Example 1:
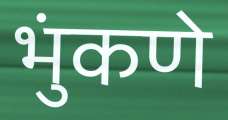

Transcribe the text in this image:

भुंकणे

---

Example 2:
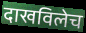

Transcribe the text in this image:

दाखविलेच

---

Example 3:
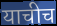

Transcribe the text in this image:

याचीच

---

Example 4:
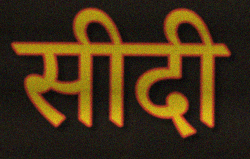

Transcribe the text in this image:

सीदी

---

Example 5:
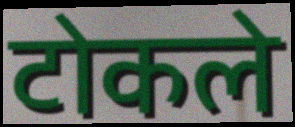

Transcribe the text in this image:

टोकले